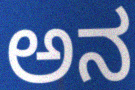
ಅನ